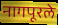
नागपूरले